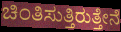
ಚಿಂತಿಸುತ್ತಿರುತ್ತೇನೆ